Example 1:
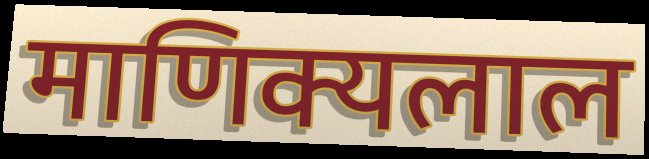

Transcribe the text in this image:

माणिक्यलाल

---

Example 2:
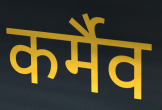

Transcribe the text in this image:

कर्मैव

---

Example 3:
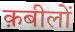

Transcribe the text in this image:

क़बीलों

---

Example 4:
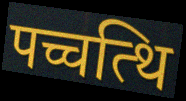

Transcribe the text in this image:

पच्चत्थि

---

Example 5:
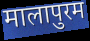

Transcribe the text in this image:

मालापुरम